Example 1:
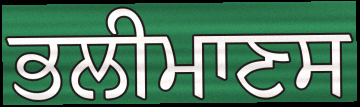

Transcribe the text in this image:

ਭਲੀਮਾਣਸ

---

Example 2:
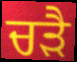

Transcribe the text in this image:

ਚੜੈ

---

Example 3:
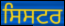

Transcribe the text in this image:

ਸਿਸਟਰ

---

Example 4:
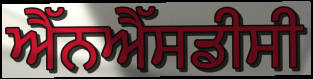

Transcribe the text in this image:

ਐੱਨਐੱਸਡੀਸੀ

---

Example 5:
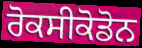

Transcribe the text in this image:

ਰੋਕਸੀਕੋਡੋਨ